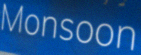
Monsoon